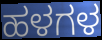
ಹಳಗಳ